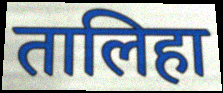
तालिहा